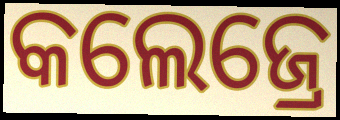
କଲେଜ୍ରେ